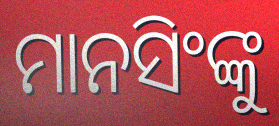
ମାନସିଂଙ୍କୁ